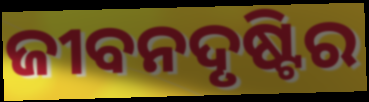
ଜୀବନଦୃଷ୍ଟିର